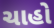
ચાહો